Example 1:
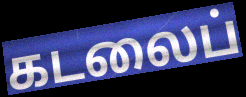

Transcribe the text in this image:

கடலைப்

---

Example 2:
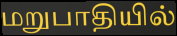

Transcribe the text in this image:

மறுபாதியில்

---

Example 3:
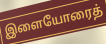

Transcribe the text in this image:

இளையோரைத்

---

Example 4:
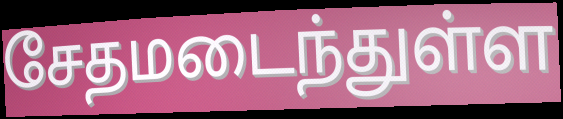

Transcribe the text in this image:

சேதமடைந்துள்ள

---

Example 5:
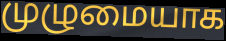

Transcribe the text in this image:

முழுமையாக